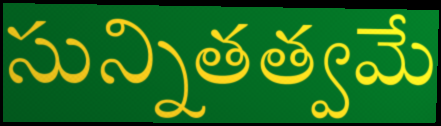
సున్నితత్వమే